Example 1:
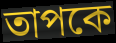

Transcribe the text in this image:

তাপকে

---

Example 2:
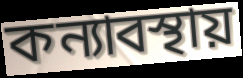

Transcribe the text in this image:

কন্যাবস্থায়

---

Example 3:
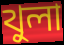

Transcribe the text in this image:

থুলা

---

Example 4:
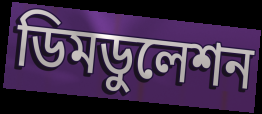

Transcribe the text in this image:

ডিমডুলেশন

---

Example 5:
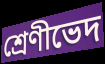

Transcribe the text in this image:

শ্রেণীভেদ